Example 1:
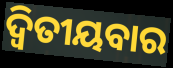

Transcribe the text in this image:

ଦ୍ୱିତୀୟବାର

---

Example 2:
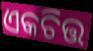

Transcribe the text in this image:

ଏକଚିତ୍ତ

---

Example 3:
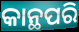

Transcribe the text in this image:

କାନ୍ଥପରି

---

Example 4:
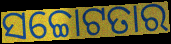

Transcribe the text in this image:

ସଚ୍ଚୋଟତାର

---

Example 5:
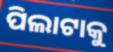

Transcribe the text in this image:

ପିଲାଟାକୁ